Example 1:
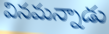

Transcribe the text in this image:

వినమన్నాడు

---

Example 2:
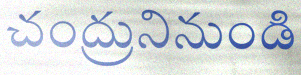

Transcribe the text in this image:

చంద్రునినుండి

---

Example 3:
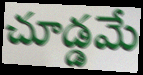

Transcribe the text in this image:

చూడ్డమే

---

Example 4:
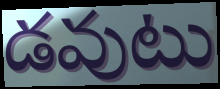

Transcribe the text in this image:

డవుటు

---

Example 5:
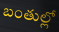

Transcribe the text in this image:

బంతుల్లో